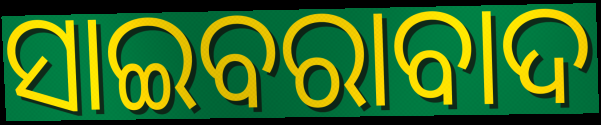
ସାଇବରାବାଦ